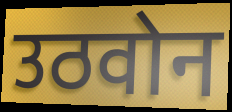
उठवोन